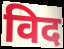
विद